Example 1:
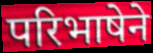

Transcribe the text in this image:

परिभाषेने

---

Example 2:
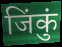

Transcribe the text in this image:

जिंकुं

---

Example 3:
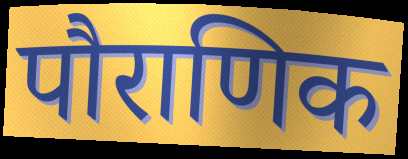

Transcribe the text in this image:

पौराणिक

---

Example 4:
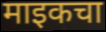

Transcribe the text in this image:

माइकचा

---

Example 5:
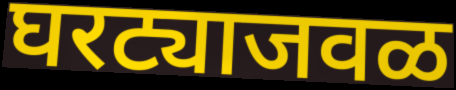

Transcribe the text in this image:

घरट्याजवळ